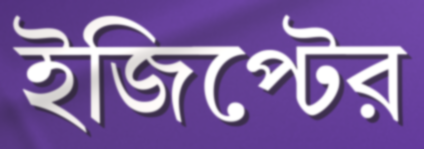
ইজিপ্টের